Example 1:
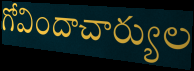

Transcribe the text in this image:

గోవిందాచార్యుల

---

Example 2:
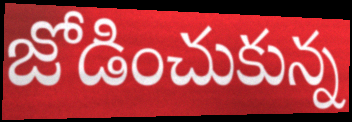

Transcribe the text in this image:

జోడించుకున్న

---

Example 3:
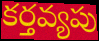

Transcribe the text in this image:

కర్తవ్యపు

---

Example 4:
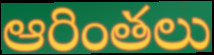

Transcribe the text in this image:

ఆరింతలు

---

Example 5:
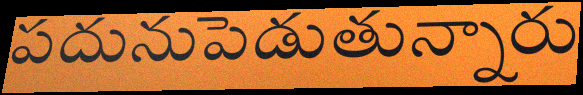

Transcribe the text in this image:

పదునుపెడుతున్నారు